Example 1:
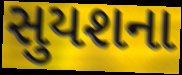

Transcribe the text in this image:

સુયશના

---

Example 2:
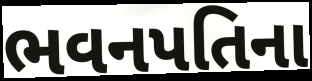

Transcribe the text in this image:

ભવનપતિના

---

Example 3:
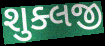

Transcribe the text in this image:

શુક્લજી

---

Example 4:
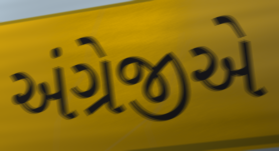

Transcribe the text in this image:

અંગ્રેજીએ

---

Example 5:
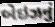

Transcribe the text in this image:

બેઇઝનું